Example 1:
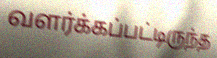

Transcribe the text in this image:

வளர்க்கப்பட்டிருந்த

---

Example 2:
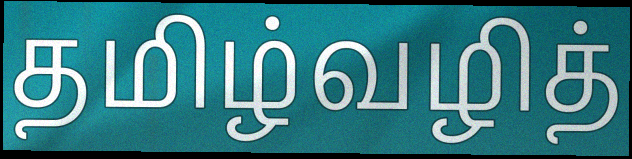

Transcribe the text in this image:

தமிழ்வழித்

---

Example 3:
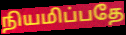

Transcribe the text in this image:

நியமிப்பதே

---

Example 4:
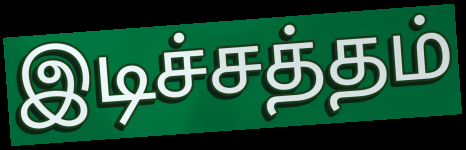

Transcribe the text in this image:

இடிச்சத்தம்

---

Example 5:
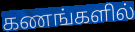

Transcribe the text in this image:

கணங்களில்